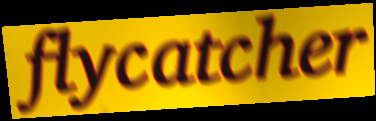
flycatcher